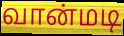
வான்மடி